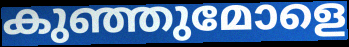
കുഞ്ഞുമോളെ